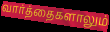
வார்த்தைகளாலும்